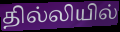
தில்லியில்